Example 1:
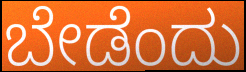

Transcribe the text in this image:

ಬೇಡೆಂದು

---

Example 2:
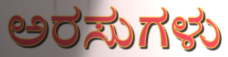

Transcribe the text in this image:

ಅರಸುಗಳು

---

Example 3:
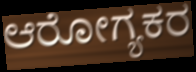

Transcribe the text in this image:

ಆರೋಗ್ಯಕರ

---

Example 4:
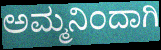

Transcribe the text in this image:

ಅಮ್ಮನಿಂದಾಗಿ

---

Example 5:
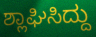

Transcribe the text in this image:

ಶ್ಲಾಘಿಸಿದ್ದು